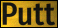
Putt